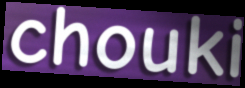
chouki